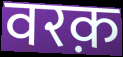
वरक़